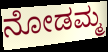
ನೋಡಮ್ಮ